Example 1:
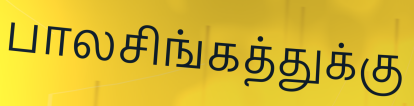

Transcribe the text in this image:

பாலசிங்கத்துக்கு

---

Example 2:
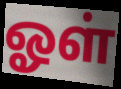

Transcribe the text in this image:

ஓள்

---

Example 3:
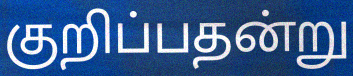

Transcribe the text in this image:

குறிப்பதன்று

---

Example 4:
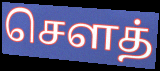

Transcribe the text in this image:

சௌத்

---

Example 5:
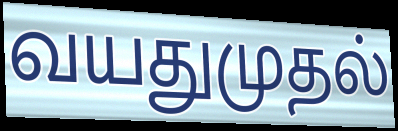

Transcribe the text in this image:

வயதுமுதல்